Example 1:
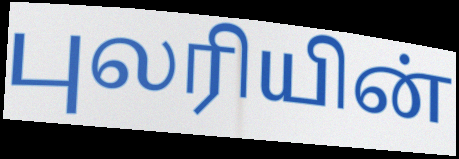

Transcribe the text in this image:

புலரியின்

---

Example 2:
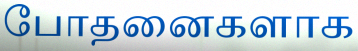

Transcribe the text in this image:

போதனைகளாக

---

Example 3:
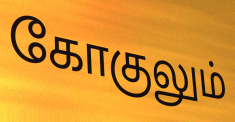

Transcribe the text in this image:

கோகுலும்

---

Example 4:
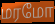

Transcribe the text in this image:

மரமோ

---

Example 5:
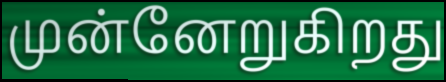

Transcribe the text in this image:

முன்னேறுகிறது